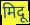
मिदू